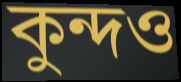
কুন্দও